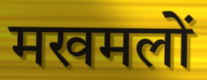
मखमलों